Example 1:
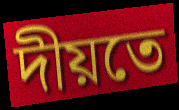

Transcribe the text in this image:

দীয়তে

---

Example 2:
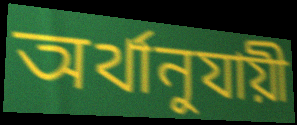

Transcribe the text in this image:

অর্থানুযায়ী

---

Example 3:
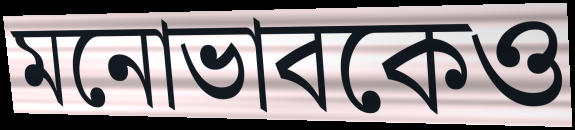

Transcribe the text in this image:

মনোভাবকেও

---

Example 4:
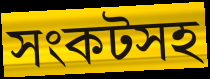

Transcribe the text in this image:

সংকটসহ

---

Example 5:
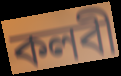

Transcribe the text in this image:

কলবী